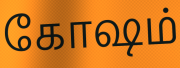
கோஷம்